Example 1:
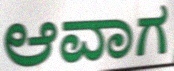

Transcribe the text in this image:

ಆವಾಗ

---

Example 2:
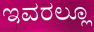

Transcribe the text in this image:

ಇವರಲ್ಲೂ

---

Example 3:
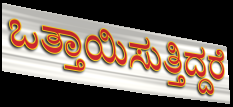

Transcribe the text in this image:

ಒತ್ತಾಯಿಸುತ್ತಿದ್ದರೆ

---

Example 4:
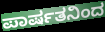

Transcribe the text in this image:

ಪಾರ್ಷತನಿಂದ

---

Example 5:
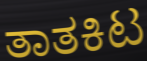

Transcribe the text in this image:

ತಾತಕಿಟ